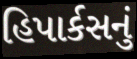
હિપાર્કસનું